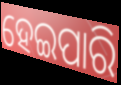
ହେଇପାରି